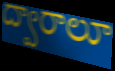
ద్వారాలూ